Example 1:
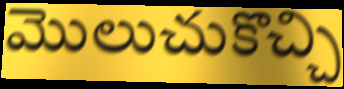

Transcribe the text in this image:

మొలుచుకొచ్చి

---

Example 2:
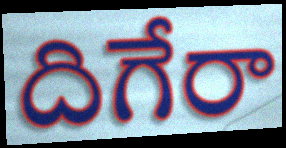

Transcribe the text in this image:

దిగేరా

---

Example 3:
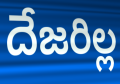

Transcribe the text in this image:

దేజరిల్ల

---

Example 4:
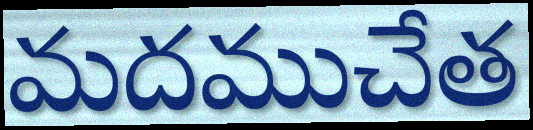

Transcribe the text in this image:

మదముచేత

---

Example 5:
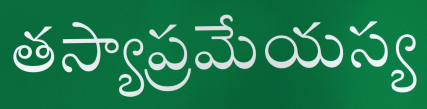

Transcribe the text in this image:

తస్యాప్రమేయస్య